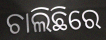
ଚାଲିଛିରେ